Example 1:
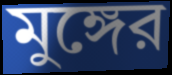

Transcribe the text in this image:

মুঙ্গের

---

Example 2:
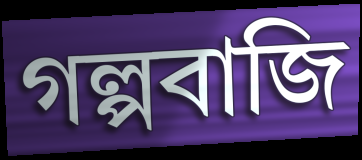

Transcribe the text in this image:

গল্পবাজি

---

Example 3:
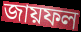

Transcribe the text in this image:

জায়ফল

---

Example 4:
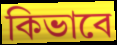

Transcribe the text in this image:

কিভাবে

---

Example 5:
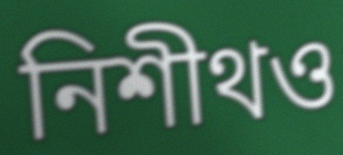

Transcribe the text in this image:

নিশীথও